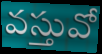
వస్తువో